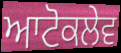
ਆਟੋਕਲੇਵ